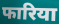
फारिया